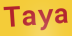
Taya